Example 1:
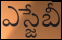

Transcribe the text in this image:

ఎస్జేబీ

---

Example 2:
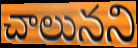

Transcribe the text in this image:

చాలునని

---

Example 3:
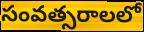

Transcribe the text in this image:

సంవత్సరాలలో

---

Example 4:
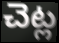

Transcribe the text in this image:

చెట్ల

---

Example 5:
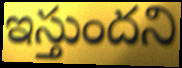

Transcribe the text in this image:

ఇస్తుందని